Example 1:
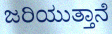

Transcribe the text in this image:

ಜರಿಯುತ್ತಾನೆ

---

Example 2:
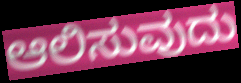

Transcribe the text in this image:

ಆಲಿಸುವುದು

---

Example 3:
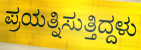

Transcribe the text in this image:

ಪ್ರಯತ್ನಿಸುತ್ತಿದ್ದಳು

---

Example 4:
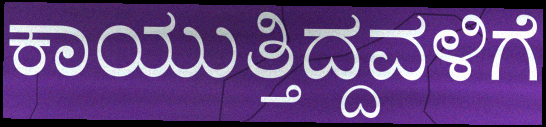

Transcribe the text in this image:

ಕಾಯುತ್ತಿದ್ದವಳಿಗೆ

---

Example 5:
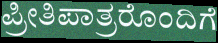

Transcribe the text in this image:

ಪ್ರೀತಿಪಾತ್ರರೊಂದಿಗೆ